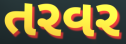
તરવર